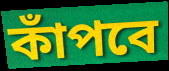
কাঁপবে